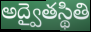
అద్వైతస్థితి